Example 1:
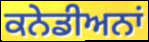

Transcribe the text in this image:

ਕਨੇਡੀਅਨਾਂ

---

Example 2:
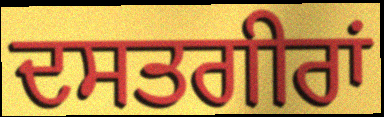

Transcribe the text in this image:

ਦਸਤਗੀਰਾਂ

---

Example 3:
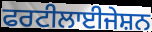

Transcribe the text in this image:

ਫਰਟੀਲਾਈਜੇਸ਼ਨ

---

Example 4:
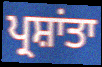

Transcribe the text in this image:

ਪ੍ਰਸ਼ਾਂਤਾ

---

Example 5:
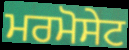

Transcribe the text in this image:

ਮਰਮੋਸੇਟ